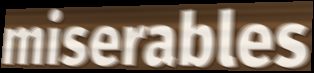
miserables